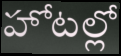
హోటల్లో